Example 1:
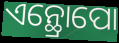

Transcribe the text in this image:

ଏନ୍ଥ୍ରୋପୋ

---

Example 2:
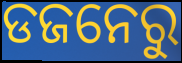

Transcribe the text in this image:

ଡଜନେରୁ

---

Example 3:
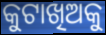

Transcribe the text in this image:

କୁଟାଖିଅକୁ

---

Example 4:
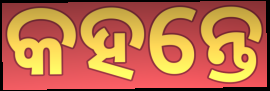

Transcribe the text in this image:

କହନ୍ତେ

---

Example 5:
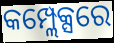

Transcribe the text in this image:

କମ୍ପ୍ଲେକ୍ସରେ